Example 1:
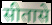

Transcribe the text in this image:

सीतासे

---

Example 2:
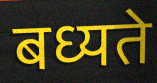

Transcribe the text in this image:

बध्यते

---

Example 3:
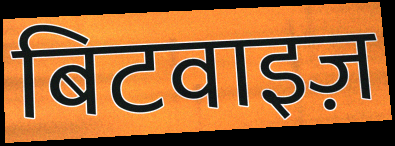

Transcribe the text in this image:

बिटवाइज़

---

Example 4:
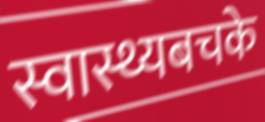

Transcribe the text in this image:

स्वास्थ्यबचके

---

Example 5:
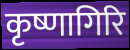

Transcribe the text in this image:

कृष्णागिरि